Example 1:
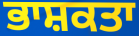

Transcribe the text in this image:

ਭਾਸ਼ਕਤਾ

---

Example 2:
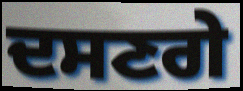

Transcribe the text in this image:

ਦਸਣਗੇ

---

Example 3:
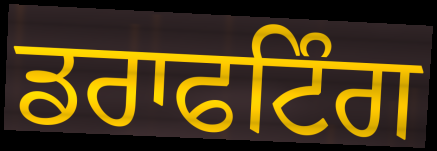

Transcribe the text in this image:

ਡਰਾਫਟਿੰਗ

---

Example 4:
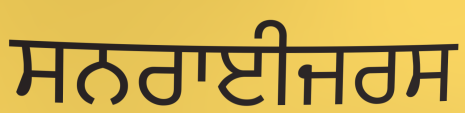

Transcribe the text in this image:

ਸਨਰਾਈਜਰਸ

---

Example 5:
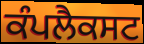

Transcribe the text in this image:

ਕੰਪਲੈਕਸਟ